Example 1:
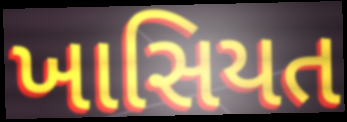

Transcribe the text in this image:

ખાસિયત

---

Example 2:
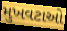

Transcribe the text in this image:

મુખવટાઓ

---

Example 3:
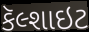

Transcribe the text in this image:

કૅલ્શાઇટ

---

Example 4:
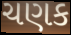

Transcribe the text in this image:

ચણક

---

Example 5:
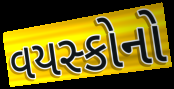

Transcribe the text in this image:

વયસ્કોનો